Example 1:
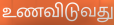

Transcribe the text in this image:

உணவிடுவது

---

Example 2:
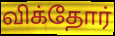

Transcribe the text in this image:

விக்தோர்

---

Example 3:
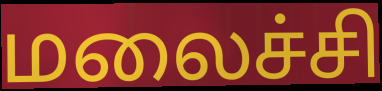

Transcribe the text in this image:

மலைச்சி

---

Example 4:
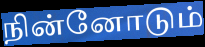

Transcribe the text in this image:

நின்னோடும்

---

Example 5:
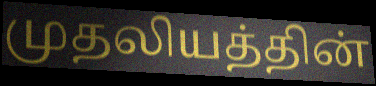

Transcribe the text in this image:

முதலியத்தின்